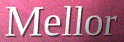
Mellor